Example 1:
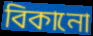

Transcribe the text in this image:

বিকানো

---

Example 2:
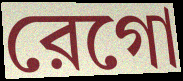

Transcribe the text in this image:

রেগো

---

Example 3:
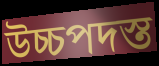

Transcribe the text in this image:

উচ্চপদস্ত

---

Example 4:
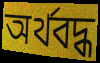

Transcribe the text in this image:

অর্থবদ্ধ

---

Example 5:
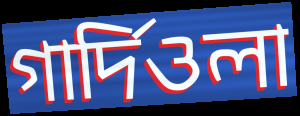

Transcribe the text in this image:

গার্দিওলা